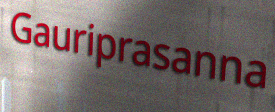
Gauriprasanna